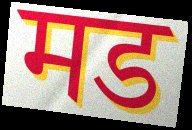
मड